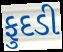
ફુદડી